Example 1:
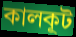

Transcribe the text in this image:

কালকূট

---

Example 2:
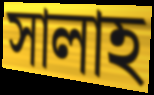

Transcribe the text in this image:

সালাহ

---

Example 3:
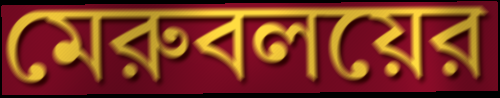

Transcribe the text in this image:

মেরুবলয়ের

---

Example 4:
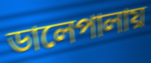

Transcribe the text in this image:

ডালেপালায়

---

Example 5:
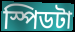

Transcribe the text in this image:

স্পিডটা